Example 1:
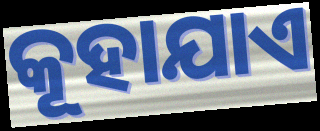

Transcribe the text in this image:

କୂହାଯାଏ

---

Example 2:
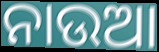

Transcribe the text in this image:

ନାଉଆ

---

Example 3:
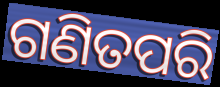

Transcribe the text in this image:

ଗଣିତପରି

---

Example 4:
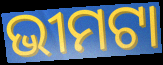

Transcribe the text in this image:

ଭୀମଟା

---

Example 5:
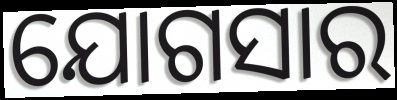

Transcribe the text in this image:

ଯୋଗସାର